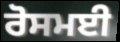
ਰੋਸਮਈ